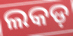
ଲକଡ଼